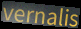
vernalis